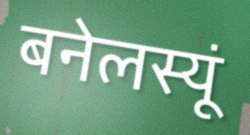
बनेलस्यूं